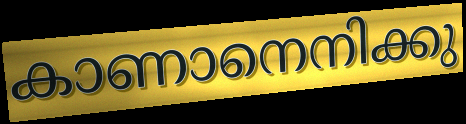
കാണാനെനിക്കു